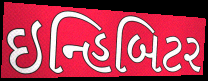
ઇન્હિબિટર